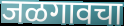
जळगावचा